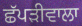
ਛੱਪੜੀਵਾਲਾ